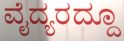
ವೈದ್ಯರದ್ದೂ